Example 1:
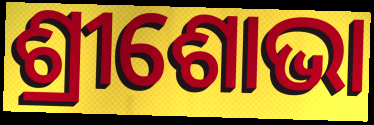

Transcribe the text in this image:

ଶ୍ରୀଶୋଭା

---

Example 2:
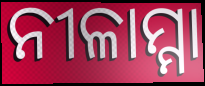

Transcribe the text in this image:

ନୀଳାମ୍ମା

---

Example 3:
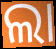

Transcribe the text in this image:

ଲା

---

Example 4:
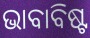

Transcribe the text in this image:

ଭାବାବିଷ୍ଟ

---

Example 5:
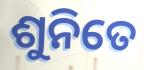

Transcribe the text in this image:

ଶୁନିତେ